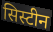
सिस्टीन